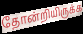
தோன்றியிருக்க